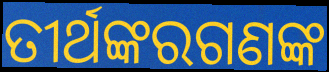
ତୀର୍ଥଙ୍କରଗଣଙ୍କ